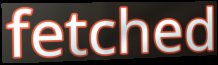
fetched